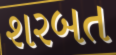
શરબત